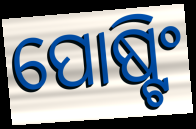
ପୋଷ୍ଟିଂ